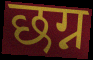
छग्न